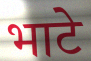
भाटे